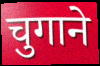
चुगाने